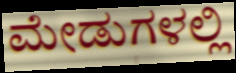
ಮೇಡುಗಳಲ್ಲಿ